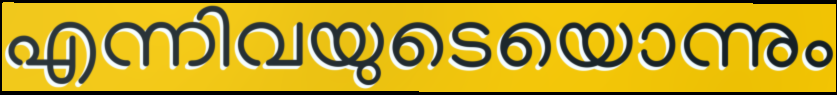
എന്നിവയുടെയൊന്നും